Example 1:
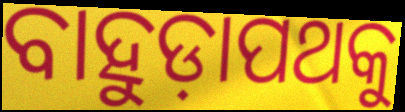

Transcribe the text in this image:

ବାହୁଡ଼ାପଥକୁ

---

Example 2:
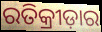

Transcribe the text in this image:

ରତିକ୍ରୀଡ଼ାର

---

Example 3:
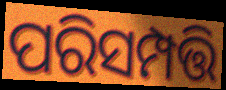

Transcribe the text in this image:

ପରିସମ୍ପତ୍ତି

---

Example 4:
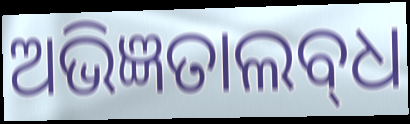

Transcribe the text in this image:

ଅଭିଜ୍ଞତାଲବ୍‌ଧ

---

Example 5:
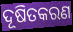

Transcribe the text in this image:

ଦୂଷିତକରଣ